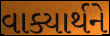
વાક્યાર્થને